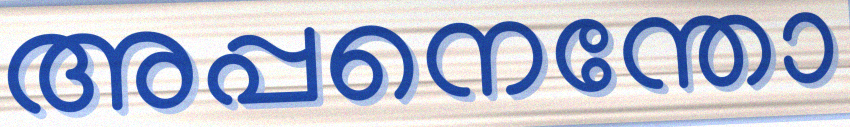
അപ്പനെന്തോ